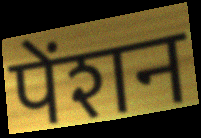
पेंशन